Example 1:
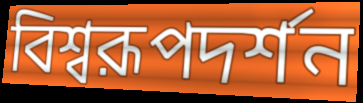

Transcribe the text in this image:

বিশ্বরূপদর্শন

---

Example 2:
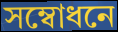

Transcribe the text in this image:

সম্বোধনে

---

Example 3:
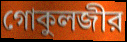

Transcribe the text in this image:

গোকুলজীর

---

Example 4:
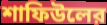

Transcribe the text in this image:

শাফিউলের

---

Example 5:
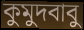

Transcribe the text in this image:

কুমুদবাবু